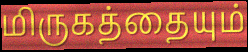
மிருகத்தையும்